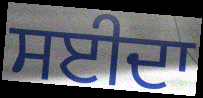
ਸਈਦਾ